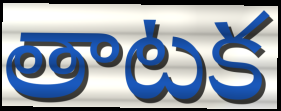
తాటక